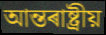
আন্তৰাষ্ট্ৰীয়